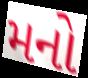
મનો